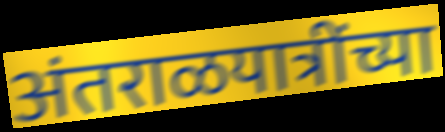
अंतराळयात्रींच्या